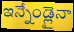
ఇన్నేండ్లైనా